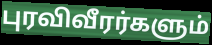
புரவிவீரர்களும்